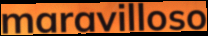
maravilloso